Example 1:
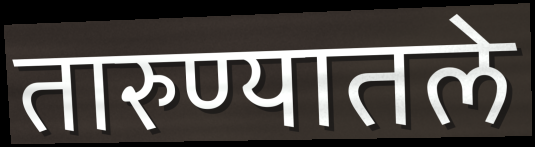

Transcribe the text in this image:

तारुण्यातले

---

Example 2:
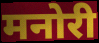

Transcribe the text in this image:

मनोरी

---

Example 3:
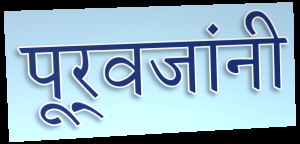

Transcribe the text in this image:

पूर्वजांनी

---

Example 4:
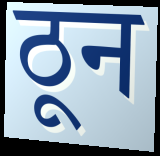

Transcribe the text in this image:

ठून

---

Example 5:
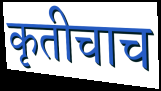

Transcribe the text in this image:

कृतीचाच